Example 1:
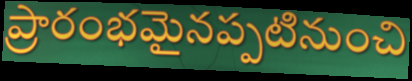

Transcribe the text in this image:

ప్రారంభమైనప్పటినుంచి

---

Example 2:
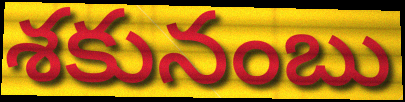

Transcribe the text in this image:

శకునంబు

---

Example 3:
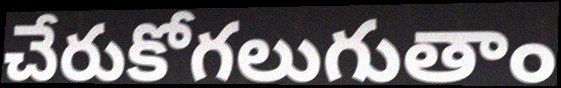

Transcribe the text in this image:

చేరుకోగలుగుతాం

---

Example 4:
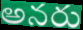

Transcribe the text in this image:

అనరు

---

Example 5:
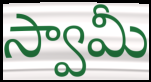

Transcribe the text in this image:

స్వామీ